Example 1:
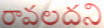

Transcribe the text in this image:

రావలదని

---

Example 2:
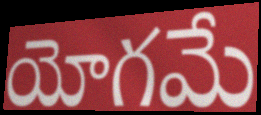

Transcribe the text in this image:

యోగమే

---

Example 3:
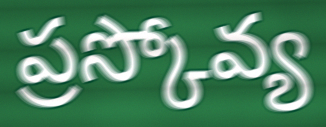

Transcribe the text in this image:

ప్రస్కోవ్య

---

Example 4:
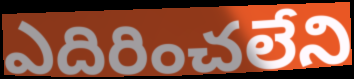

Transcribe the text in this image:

ఎదిరించలేని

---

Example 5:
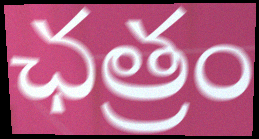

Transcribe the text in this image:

ఛత్రం